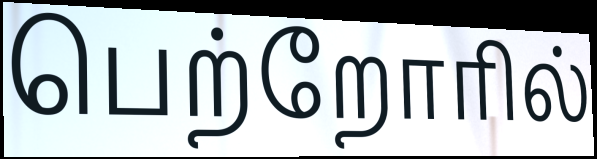
பெற்றோரில்